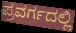
ಪ್ರವರ್ಗದಲ್ಲಿ